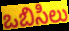
ఒబిసిలు